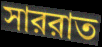
সাররাত